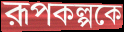
রূপকল্পকে